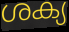
ശക്യ